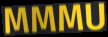
MMMU